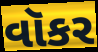
વૉકર